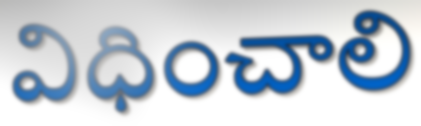
విధించాలి